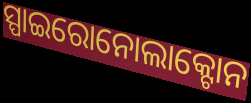
ସ୍ପାଇରୋନୋଲାକ୍ଟୋନ